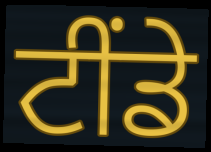
ਟੀਂਡੇ